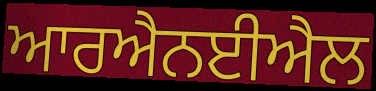
ਆਰਐਨਈਐਲ